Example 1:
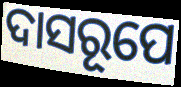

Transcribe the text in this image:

ଦାସରୂପେ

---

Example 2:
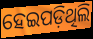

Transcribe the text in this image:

ହେଇପଡ଼ିଥିଲି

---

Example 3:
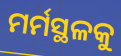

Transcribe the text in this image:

ମର୍ମସ୍ଥଳକୁ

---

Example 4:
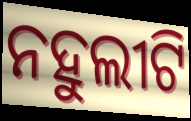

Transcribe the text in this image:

ନହୁଲୀଟି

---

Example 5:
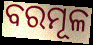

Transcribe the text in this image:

ବରମୂଳ